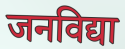
जनविद्या